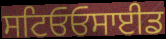
ਸਟਿਓਓਸਾਈਡ